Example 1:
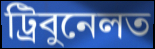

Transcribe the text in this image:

ট্ৰিবুনেলত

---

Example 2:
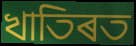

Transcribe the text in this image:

খাতিৰত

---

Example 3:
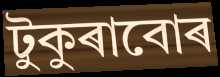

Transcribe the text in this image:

টুকুৰাবোৰ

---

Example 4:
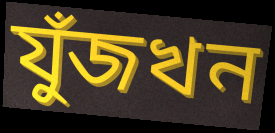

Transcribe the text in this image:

যুঁজখন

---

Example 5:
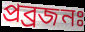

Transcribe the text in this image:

প্ৰব্ৰজনঃ